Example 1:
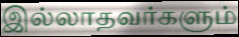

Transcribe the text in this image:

இல்லாதவர்களும்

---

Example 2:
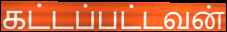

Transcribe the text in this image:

கட்டப்பட்டவன்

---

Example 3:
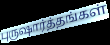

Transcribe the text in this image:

புருஷார்த்தங்கள்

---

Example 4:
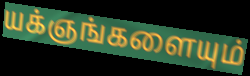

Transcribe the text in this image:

யக்ஞங்களையும்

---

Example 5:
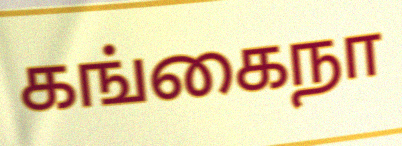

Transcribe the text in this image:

கங்கைநா